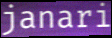
janari